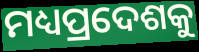
ମଧ୍ୟପ୍ରଦେଶକୁ